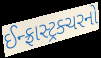
ઈન્ફ્રાસ્ટ્રક્ચરનો